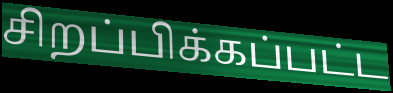
சிறப்பிக்கப்பட்ட